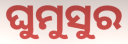
ଘୁମୁସୁର